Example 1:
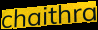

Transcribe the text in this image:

chaithra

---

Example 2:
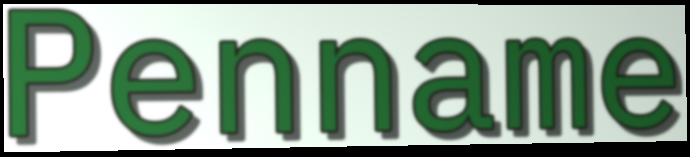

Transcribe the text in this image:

Penname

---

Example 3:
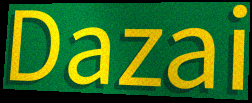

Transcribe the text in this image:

Dazai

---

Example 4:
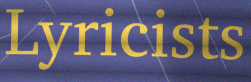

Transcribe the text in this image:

Lyricists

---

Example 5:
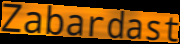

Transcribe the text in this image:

Zabardast